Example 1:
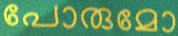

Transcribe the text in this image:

പോരുമോ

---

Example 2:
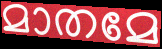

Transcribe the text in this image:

മാതമേ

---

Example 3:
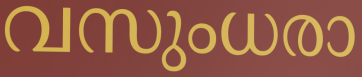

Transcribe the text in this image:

വസുംധരാ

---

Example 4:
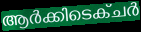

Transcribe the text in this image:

ആർക്കിടെക്ചർ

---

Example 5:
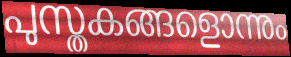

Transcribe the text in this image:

പുസ്തകങ്ങളൊന്നും